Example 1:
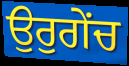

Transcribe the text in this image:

ਉਰੁਗੇਂਚ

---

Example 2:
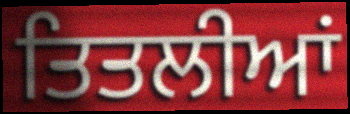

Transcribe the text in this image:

ਤਿਤਲੀਆਂ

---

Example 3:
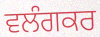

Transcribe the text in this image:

ਵਲੰਗਕਰ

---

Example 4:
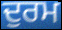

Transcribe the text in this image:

ਦੁਰਮ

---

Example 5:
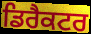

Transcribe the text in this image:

ਡਿਰੈਕਟਰ